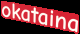
okataina